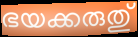
ഭയക്കരുതു്